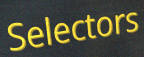
Selectors